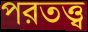
পরতত্ত্ব